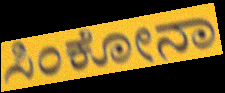
ಸಿಂಕೋನಾ